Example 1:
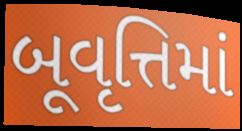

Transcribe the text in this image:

બૂવૃત્તિમાં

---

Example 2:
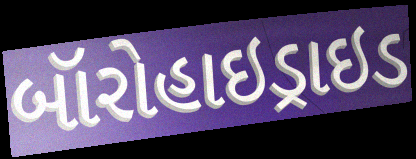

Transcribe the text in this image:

બૉરોહાઇડ્રાઇડ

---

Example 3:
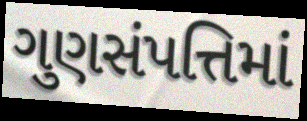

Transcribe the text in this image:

ગુણસંપત્તિમાં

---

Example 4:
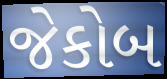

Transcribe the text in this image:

જેકોબ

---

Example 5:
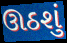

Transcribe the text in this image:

ઊઠશું